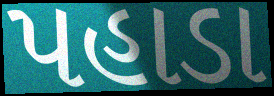
પહાડા